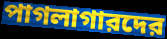
পাগলাগারদের